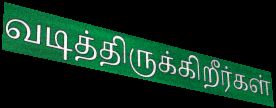
வடித்திருக்கிறீர்கள்